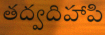
తద్వదిహాపి